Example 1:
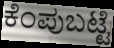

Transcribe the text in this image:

ಕೆಂಪುಬಟ್ಟೆ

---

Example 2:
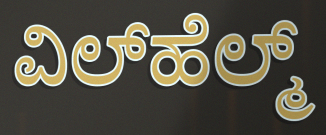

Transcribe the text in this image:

ವಿಲ್‌ಹೆಲ್ಮ್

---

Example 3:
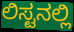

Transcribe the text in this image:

ಲಿಸ್ಟನಲ್ಲಿ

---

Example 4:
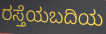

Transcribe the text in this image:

ರಸ್ತೆಯಬದಿಯ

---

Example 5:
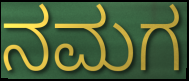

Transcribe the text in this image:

ನಮಗ